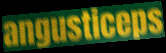
angusticeps